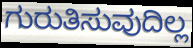
ಗುರುತಿಸುವುದಿಲ್ಲ